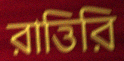
রাত্তিরি